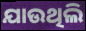
ଯାଉଥିଲି